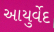
આયુર્વેદ